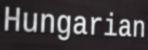
Hungarian